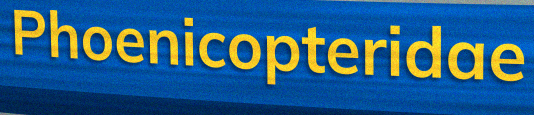
Phoenicopteridae